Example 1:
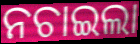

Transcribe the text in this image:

ନଚାଇଲା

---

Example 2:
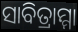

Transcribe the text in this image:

ସାବିତ୍ରାମ୍ମା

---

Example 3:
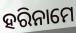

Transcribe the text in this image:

ହରିନାମେ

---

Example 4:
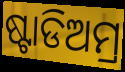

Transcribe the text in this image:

ଷ୍ଟାଡିଅମ୍ର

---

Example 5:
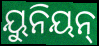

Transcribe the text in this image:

ୟୁନିୟନ୍